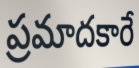
ప్రమాదకారే